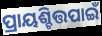
ପ୍ରାୟଶ୍ଚିତ୍ତପାଇଁ